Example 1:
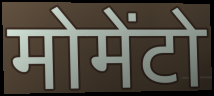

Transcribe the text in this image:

मोमेंटो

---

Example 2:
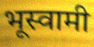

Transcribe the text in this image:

भूस्‍वामी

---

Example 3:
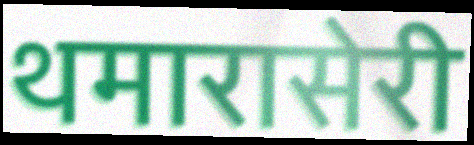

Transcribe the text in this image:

थमारासेरी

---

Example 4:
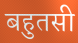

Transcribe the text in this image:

बहुतसी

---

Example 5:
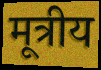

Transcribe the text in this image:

मूत्रीय